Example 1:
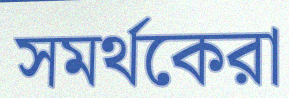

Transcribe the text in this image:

সমর্থকেরা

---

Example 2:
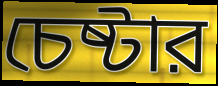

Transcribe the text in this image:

চেষ্টার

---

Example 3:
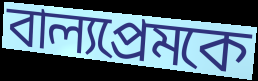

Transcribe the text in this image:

বাল্যপ্রেমকে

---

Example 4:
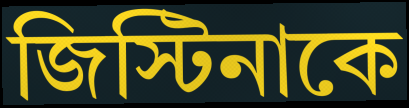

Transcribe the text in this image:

জিস্টিনাকে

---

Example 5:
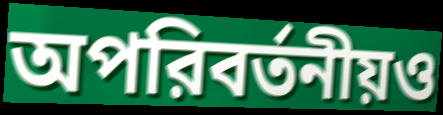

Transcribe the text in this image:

অপরিবর্তনীয়ও